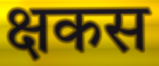
क्षकस